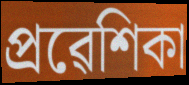
প্ৰৱেশিকা